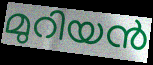
മുറിയൻ